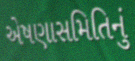
એષણાસમિતિનું